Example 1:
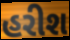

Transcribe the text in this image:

હરીશ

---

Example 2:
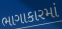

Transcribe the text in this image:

ભાગાકારમાં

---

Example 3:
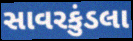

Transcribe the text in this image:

સાવરકુંડલા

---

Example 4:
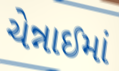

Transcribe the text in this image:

ચેન્નાઈમાં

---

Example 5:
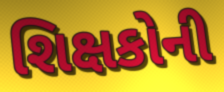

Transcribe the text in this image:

શિક્ષકોની